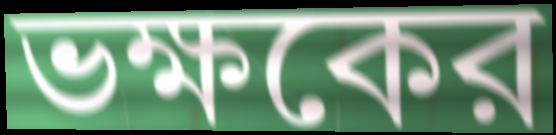
ভক্ষকের